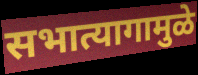
सभात्यागामुळे